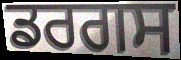
ਡਰਗਸ